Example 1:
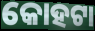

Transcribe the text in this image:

କୋହଟା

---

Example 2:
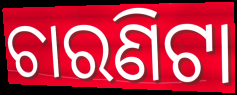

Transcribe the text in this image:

ଚାରଣିଟା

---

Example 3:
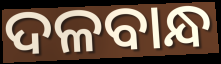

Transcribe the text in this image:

ଦଳବାନ୍ଧ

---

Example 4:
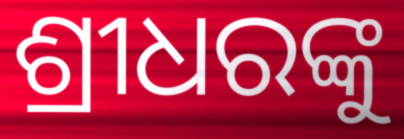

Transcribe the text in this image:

ଶ୍ରୀଧରଙ୍କୁ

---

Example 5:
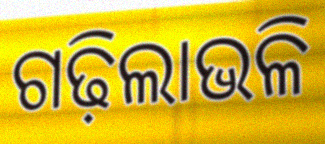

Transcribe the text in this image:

ଗଢ଼ିଲାଭଳି